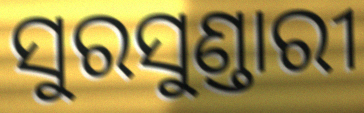
ସୁରସୁଣ୍ଡାରୀ